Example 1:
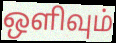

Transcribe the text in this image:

ஒளிவும்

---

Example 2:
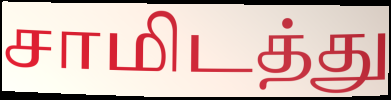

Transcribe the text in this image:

சாமிடத்து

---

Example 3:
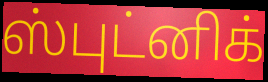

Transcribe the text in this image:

ஸ்புட்னிக்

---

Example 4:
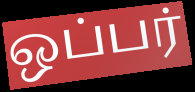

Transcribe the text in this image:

ஒப்பர்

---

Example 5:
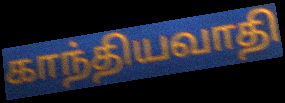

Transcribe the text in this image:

காந்தியவாதி